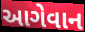
આગેવાન